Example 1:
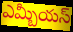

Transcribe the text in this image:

ఎమ్బీయస్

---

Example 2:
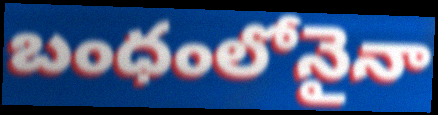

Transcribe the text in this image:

బంధంలోనైనా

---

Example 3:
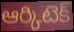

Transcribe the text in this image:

ఆర్కిటెక్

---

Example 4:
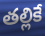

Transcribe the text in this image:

తల్లికే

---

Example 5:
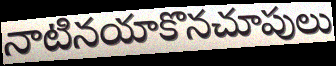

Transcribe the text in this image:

నాటినయాకొనచూపులు